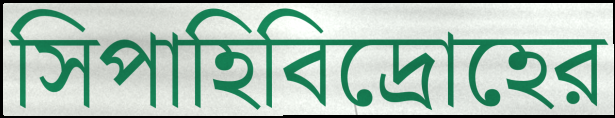
সিপাহিবিদ্রোহের